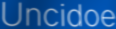
Uncidoe